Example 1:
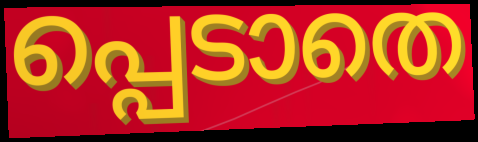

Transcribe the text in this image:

പ്പെടാതെ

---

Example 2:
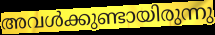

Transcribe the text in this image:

അവൾക്കുണ്ടായിരുന്നു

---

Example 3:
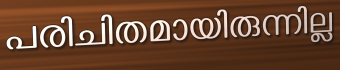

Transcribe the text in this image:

പരിചിതമായിരുന്നില്ല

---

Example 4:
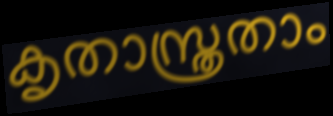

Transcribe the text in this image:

കൃതാസ്ത്രതാം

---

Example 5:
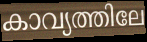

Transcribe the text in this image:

കാവ്യത്തിലേ